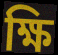
ক্ষি